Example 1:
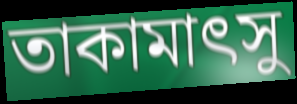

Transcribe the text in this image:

তাকামাৎসু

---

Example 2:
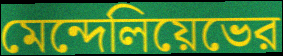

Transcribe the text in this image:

মেন্দেলিয়েভের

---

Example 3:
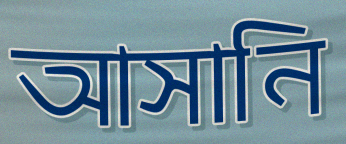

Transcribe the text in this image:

আসানি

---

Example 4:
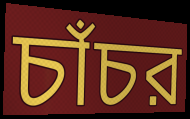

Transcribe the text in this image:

চাঁচর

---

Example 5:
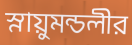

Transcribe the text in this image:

স্নায়ুমন্ডলীর